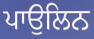
ਪਾਉਲਿਨ